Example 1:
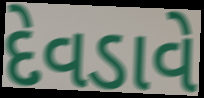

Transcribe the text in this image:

દેવડાવે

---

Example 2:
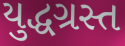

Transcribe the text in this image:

યુદ્ધગ્રસ્ત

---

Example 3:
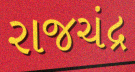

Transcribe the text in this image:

રાજચંદ્ર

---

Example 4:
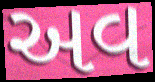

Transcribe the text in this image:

અવ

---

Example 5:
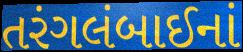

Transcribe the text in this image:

તરંગલંબાઈનાં